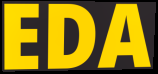
EDA